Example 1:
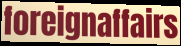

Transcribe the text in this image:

foreignaffairs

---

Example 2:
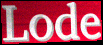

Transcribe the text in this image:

Lode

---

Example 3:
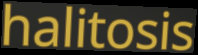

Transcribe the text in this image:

halitosis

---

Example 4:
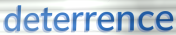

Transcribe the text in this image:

deterrence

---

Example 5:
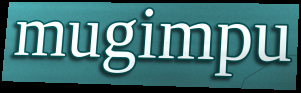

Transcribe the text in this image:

mugimpu